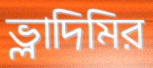
ভ্লাদিমির